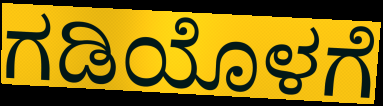
ಗಡಿಯೊಳಗೆ